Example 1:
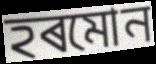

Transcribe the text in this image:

হৰমোন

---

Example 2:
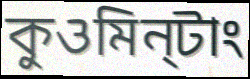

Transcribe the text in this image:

কুওমিন্‌টাং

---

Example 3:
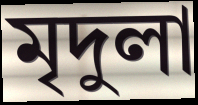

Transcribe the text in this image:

মৃদুলা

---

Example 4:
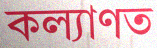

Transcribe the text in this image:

কল্যাণত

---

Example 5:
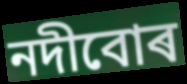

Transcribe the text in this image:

নদীবোৰ